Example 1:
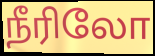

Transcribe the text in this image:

நீரிலோ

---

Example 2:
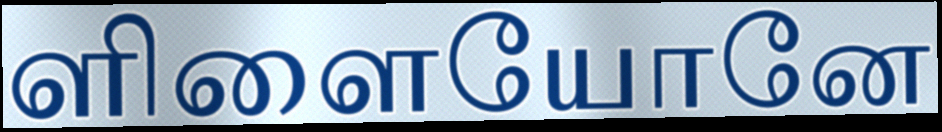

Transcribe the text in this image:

ளிளையோனே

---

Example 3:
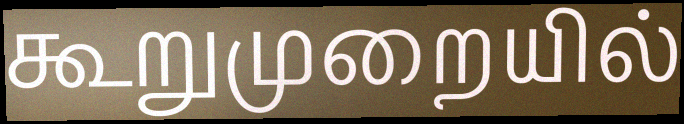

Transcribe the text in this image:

கூறுமுறையில்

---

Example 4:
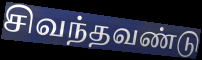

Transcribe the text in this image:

சிவந்தவண்டு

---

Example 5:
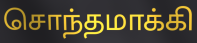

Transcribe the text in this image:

சொந்தமாக்கி